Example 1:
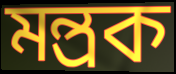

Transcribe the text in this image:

মন্ত্রক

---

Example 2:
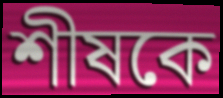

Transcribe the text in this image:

শীষকে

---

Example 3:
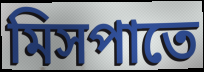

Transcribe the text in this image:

মিসপাতে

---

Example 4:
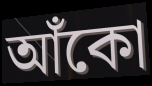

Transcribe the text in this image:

আঁকো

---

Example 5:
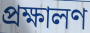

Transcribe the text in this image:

প্রক্ষালণ